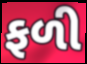
ફળી